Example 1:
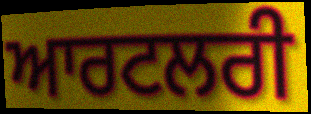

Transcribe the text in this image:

ਆਰਟਲਰੀ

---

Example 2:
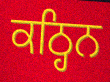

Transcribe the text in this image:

ਕਠ੍ਹਿਨ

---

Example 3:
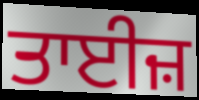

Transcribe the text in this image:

ਤਾਈਜ਼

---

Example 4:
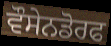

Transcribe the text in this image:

ਵੌਸੇਨਡੋਰਫ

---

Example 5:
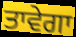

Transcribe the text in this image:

ਤਾਵੇਗਾ